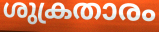
ശുക്രതാരം